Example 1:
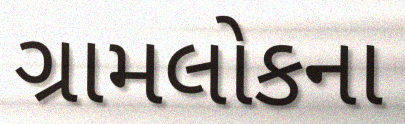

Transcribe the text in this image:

ગ્રામલોકના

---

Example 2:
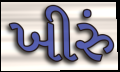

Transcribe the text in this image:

ખીરું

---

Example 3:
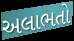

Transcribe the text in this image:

અલાભતો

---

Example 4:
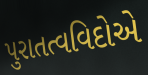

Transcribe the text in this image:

પુરાતત્વવિદોએ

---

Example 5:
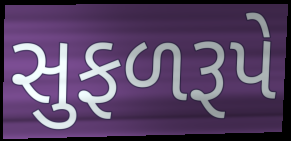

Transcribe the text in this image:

સુફળરૂપે